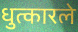
धुत्कारले